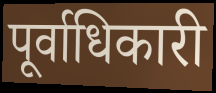
पूर्वाधिकारी